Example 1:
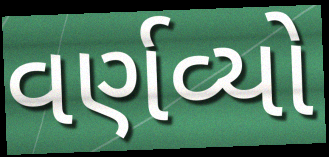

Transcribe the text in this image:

વર્ણવ્યો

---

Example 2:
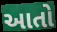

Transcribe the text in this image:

આતો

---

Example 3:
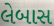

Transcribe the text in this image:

લેબાસ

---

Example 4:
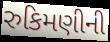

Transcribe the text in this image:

રુકિમણીની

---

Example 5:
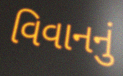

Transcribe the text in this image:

વિવાનનું